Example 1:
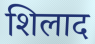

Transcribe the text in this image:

शिलाद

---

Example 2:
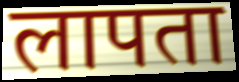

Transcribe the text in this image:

लापता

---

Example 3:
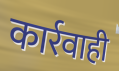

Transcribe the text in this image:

कार्रवाही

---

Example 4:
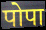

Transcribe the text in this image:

पोपा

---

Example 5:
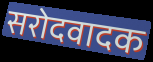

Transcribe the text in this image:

सरोदवादक